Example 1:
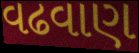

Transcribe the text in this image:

વઢવાણ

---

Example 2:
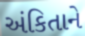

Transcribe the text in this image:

અંકિતાને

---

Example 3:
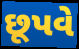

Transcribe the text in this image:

છૂપવે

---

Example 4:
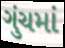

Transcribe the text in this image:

ગુંચમાં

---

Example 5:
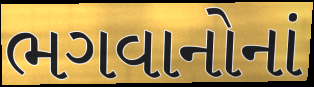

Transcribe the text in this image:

ભગવાનોનાં